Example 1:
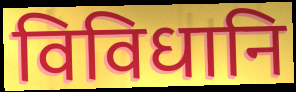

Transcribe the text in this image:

विविधानि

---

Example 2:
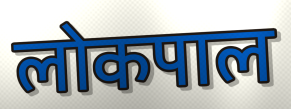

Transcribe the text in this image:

लोकपाल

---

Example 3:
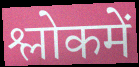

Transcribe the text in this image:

श्लोकमें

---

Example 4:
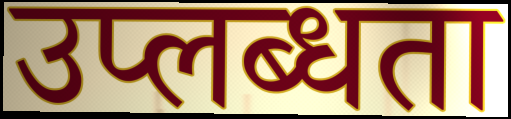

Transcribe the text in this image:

उप्लब्धता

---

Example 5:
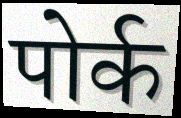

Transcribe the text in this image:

पोर्क